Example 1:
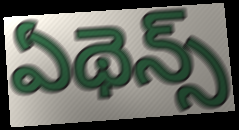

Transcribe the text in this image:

ఏథెన్స్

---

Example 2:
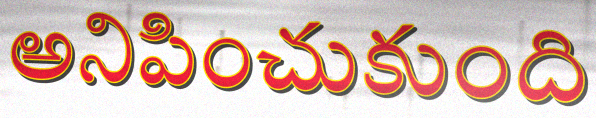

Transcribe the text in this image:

అనిపించుకుంది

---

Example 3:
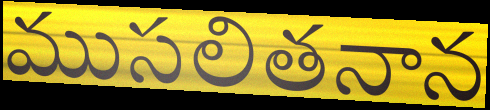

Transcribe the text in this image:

ముసలితనాన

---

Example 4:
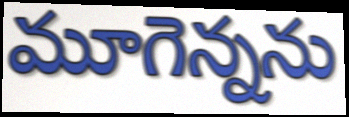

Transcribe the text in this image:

మూగెన్నను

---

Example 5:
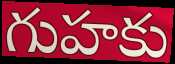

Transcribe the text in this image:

గుహకు